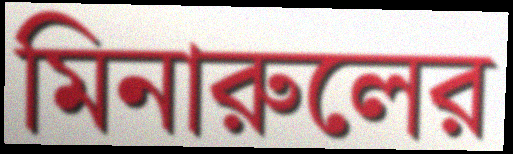
মিনারুলের